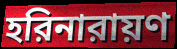
হরিনারায়ণ